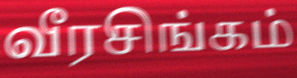
வீரசிங்கம்